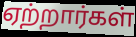
ஏற்றார்கள்